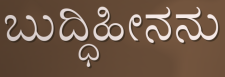
ಬುದ್ಧಿಹೀನನು